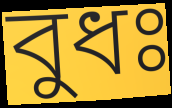
বুধঃ